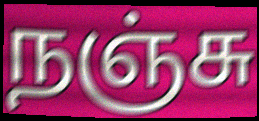
நஞ்சு